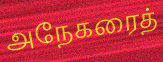
அநேகரைத்